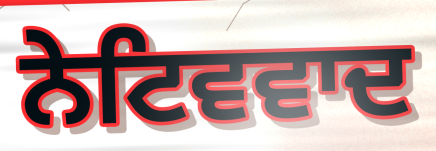
ਨੇਟਿਵਵਾਦ